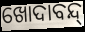
ଖୋଦାବନ୍ଦ୍